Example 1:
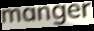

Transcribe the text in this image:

manger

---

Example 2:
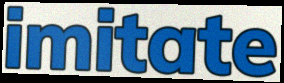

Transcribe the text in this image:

imitate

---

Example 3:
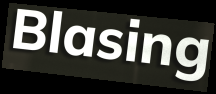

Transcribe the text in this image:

Blasing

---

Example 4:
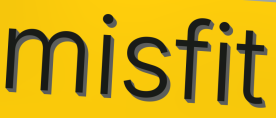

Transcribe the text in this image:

misfit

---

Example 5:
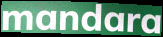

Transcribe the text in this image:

mandara